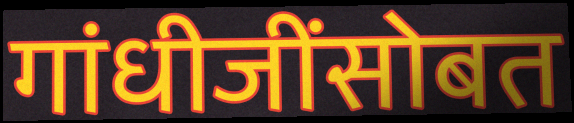
गांधीजींसोबत